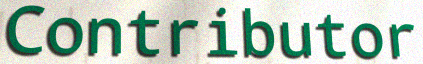
Contributor